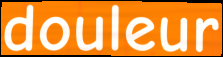
douleur